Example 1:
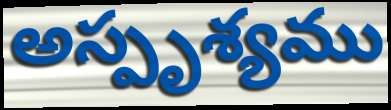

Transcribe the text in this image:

అస్పృశ్యము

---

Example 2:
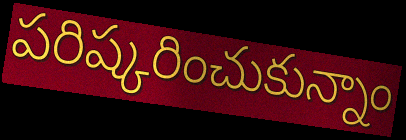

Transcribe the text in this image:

పరిష్కరించుకున్నాం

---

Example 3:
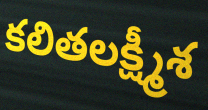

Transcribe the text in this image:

కలితలక్ష్మీశ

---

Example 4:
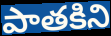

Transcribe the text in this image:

పాతకిని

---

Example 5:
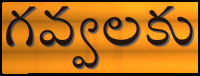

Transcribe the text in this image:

గవ్వలకు